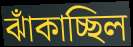
ঝাঁকাচ্ছিল